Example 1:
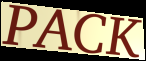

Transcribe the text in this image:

PACK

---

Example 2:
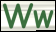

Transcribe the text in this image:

Ww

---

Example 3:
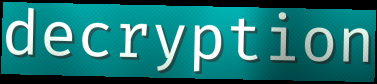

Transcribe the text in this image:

decryption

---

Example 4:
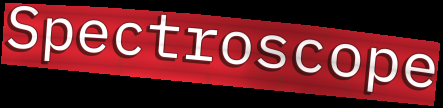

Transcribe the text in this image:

Spectroscope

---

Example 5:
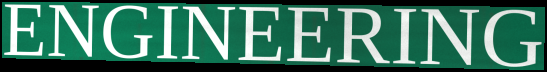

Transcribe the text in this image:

ENGINEERING